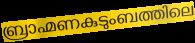
ബ്രാഹ്മണകുടുംബത്തിലെ